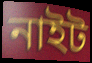
নাইট